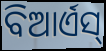
ବିଆର୍ଏସ୍